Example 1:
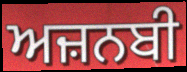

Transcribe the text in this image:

ਅਜ਼ਨਬੀ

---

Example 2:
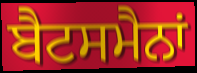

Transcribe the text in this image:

ਬੈਟਸਮੈਨਾਂ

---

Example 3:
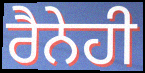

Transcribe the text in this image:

ਰੈਨੇਹੀ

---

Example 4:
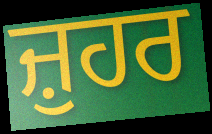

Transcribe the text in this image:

ਜ਼ੁਹਰ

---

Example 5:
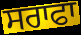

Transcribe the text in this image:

ਸਰਾਫਾ